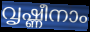
വൃഷ്ണീനാം